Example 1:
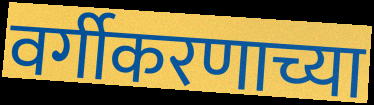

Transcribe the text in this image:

वर्गीकरणाच्या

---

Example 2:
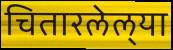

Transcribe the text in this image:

चितारलेल्या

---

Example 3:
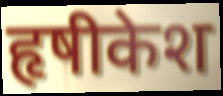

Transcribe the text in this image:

हृषीकेश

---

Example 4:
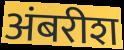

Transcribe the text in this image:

अंबरीश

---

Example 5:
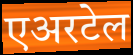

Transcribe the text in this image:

एअरटेल